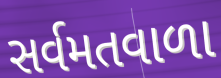
સર્વમતવાળા